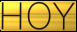
HOY